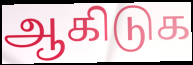
ஆகிடுக